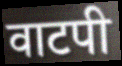
वाटपी